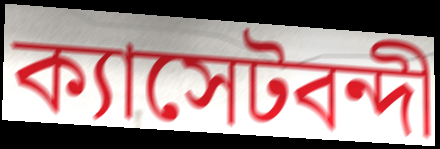
ক্যাসেটবন্দী